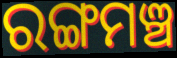
ରଙ୍ଗମଞ୍ଚ